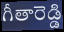
గీతారెడ్డి